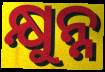
କ୍ଷୁନ୍ନ